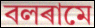
বলৰামে